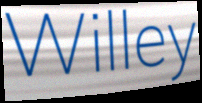
Willey